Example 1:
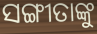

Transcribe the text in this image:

ସଙ୍ଗୀତାଙ୍କୁ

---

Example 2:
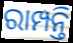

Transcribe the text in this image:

ରାମ୍ପନ୍ତି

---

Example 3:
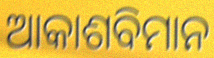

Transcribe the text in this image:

ଆକାଶବିମାନ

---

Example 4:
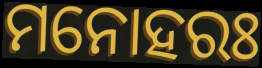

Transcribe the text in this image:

ମନୋହରଃ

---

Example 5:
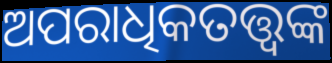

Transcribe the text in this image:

ଅପରାଧିକତତ୍ତ୍ୱଙ୍କ